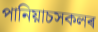
পানিয়াচসকলৰ